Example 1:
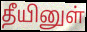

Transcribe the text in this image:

தீயினுள்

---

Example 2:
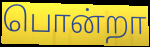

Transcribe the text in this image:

பொன்றா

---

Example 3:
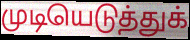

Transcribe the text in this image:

முடியெடுத்துக்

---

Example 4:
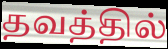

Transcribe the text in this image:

தவத்தில்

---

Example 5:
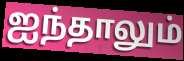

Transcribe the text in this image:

ஐந்தாலும்